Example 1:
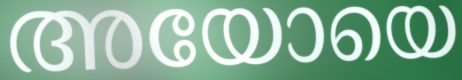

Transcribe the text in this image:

അയോയെ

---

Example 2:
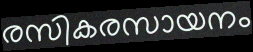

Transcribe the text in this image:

രസികരസായനം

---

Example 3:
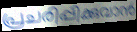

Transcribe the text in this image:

പ്രചരിപ്പിക്കുവാൻ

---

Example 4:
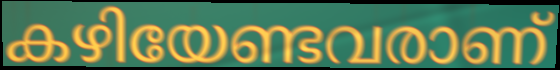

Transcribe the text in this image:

കഴിയേണ്ടവരാണ്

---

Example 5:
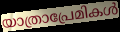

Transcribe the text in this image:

യാത്രാപ്രേമികൾ